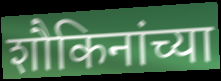
शौकिनांच्या